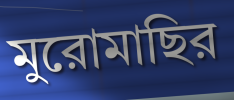
মুরোমাছির